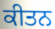
ਕੀਤਨ